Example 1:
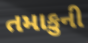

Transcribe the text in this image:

તમાકુની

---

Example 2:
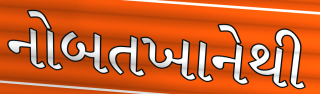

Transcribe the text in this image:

નોબતખાનેથી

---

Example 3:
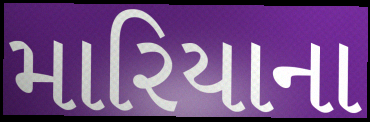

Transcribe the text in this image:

મારિયાના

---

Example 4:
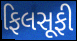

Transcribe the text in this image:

ફિલસૂફી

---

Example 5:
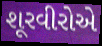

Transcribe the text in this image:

શૂરવીરોએ